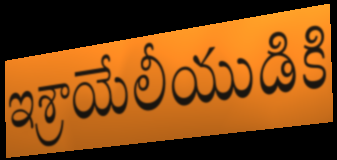
ఇశ్రాయేలీయుడికి